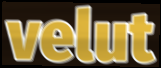
velut